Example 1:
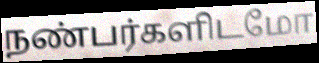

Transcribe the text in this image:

நண்பர்களிடமோ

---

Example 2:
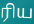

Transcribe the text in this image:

ரிய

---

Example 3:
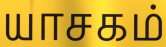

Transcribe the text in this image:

யாசகம்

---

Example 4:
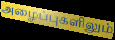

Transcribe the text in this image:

அழைப்புகளிலும்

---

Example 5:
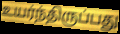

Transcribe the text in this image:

உயர்ந்திருப்பது